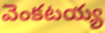
వెంకటయ్య